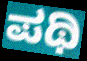
ಪಥಿ